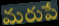
మరుపే